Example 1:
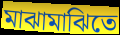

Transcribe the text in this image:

মাঝামাঝিতে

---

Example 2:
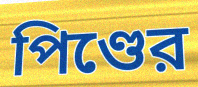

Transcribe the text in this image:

পিণ্ডের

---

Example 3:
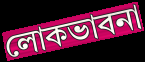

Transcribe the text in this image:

লোকভাবনা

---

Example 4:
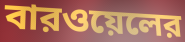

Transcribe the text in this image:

বারওয়েলের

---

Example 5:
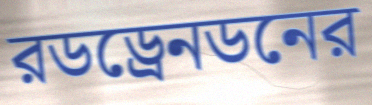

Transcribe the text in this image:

রডড্রেনডনের